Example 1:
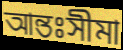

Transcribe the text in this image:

আন্তঃসীমা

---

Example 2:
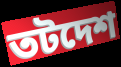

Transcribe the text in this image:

তটদেশ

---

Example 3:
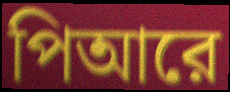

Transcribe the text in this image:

পিআরে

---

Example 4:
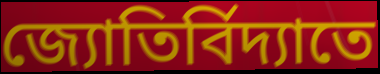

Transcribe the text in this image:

জ্যোতির্বিদ্যাতে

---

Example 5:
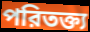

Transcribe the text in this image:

পরিতক্ত্য